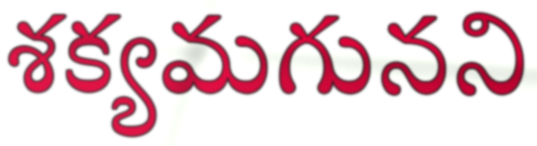
శక్యమగునని